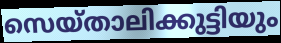
സെയ്താലിക്കുട്ടിയും